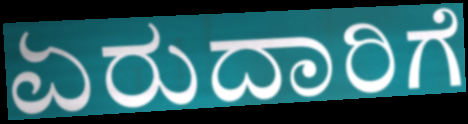
ಏರುದಾರಿಗೆ